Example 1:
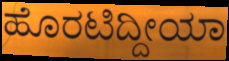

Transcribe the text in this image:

ಹೊರಟಿದ್ದೀಯಾ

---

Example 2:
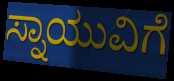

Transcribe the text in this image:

ಸ್ನಾಯುವಿಗೆ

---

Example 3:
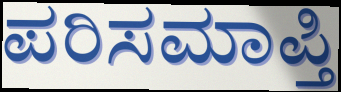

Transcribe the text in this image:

ಪರಿಸಮಾಪ್ತಿ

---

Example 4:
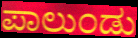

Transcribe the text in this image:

ಪಾಲುಂಡು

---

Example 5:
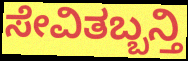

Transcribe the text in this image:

ಸೇವಿತಬ್ಬನ್ತಿ